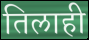
तिलाही